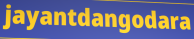
jayantdangodara